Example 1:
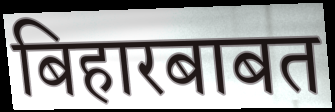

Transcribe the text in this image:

बिहारबाबत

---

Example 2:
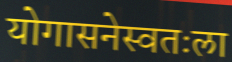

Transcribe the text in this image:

योगासनेस्वतःला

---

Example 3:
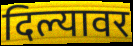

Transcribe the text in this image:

दिल्यावर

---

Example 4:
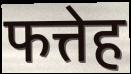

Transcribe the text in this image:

फत्तेह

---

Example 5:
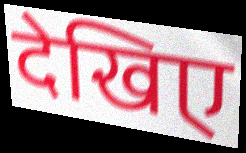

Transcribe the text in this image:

देखिए